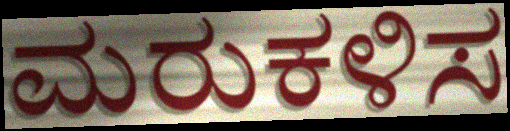
ಮರುಕಳಿಸ